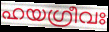
ഹയഗ്രീവഃ